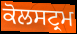
ਕੋਲਸਟ੍ਰਮ